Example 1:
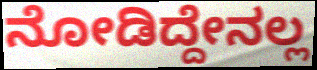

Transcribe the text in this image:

ನೋಡಿದ್ದೇನಲ್ಲ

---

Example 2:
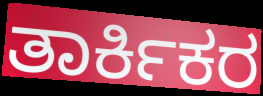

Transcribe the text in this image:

ತಾರ್ಕಿಕರ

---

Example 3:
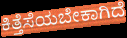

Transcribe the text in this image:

ಕಿತ್ತೆಸೆಯಬೇಕಾಗಿದೆ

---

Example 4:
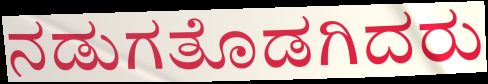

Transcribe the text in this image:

ನಡುಗತೊಡಗಿದರು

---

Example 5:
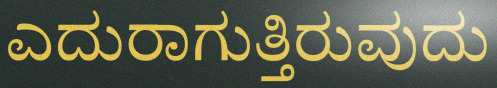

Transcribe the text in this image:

ಎದುರಾಗುತ್ತಿರುವುದು